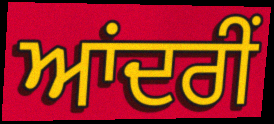
ਆਂਦਰੀਂ